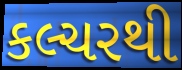
કલ્ચરથી